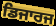
ਡਿਜਾਰਜ